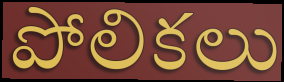
పోలికలు